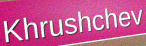
Khrushchev